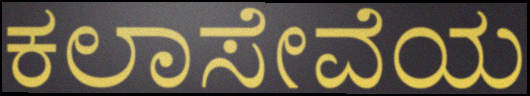
ಕಲಾಸೇವೆಯ